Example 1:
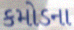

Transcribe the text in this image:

કમોડના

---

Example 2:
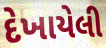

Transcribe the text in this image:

દેખાયેલી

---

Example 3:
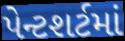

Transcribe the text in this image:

પેન્ટશર્ટમાં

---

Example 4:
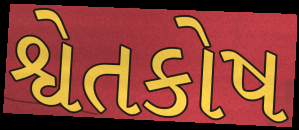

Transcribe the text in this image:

શ્વેતકોષ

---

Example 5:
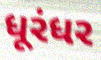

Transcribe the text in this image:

ધૂરંધર